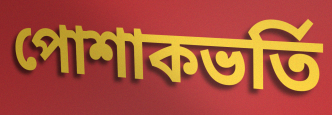
পোশাকভর্তি